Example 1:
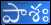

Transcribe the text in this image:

పాశః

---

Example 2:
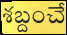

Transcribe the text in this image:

శబ్దంచే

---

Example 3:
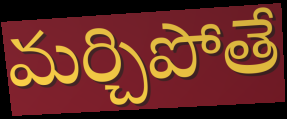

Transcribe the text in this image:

మర్చిపోతే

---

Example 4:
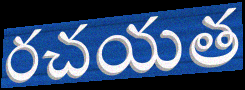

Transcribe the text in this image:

రచయత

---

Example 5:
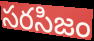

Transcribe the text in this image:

సరసిజం